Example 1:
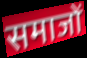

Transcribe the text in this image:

समाजों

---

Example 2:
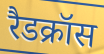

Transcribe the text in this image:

रैडक्रॉस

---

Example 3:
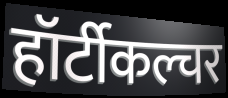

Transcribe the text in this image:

हॉर्टीकल्चर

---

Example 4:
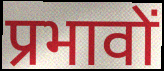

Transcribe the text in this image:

प्रभावों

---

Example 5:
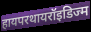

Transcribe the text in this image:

हायपरथायरॉइडिज्म